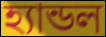
হ্যান্ডল